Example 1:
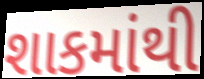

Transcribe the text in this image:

શાકમાંથી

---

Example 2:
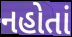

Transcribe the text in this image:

નહોતાં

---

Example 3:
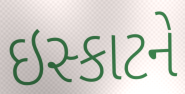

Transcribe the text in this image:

ઇસ્કાટને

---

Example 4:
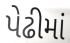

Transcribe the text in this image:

પેઢીમાં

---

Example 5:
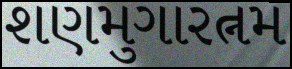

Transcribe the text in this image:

શણમુગારત્નમ